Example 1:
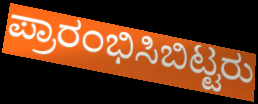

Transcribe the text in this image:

ಪ್ರಾರಂಭಿಸಿಬಿಟ್ಟರು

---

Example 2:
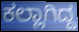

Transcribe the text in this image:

ಕಲ್ಲಾಗಿದ್ದ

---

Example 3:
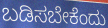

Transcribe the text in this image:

ಬಡಿಸಬೇಕೆಂದು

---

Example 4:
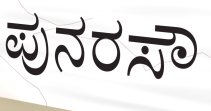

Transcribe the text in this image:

ಪುನರಸೌ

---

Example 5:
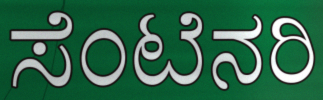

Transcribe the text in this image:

ಸೆಂಟೆನರಿ